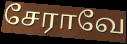
சேராவே